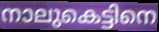
നാലുകെട്ടിനെ